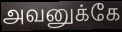
அவனுக்கே